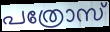
പത്രോസ്